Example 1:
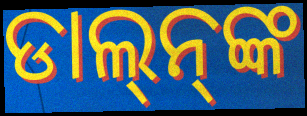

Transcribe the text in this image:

ଡାଲ୍‌ନ୍‌ଙ୍କ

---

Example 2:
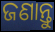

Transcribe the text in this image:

ଜଣାନ୍ତୁ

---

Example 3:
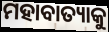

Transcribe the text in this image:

ମହାବାତ୍ୟାକୁ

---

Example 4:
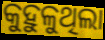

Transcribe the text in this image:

କୁହୁଳୁଥିଲା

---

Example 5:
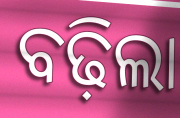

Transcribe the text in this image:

ବଢ଼ିଲା